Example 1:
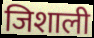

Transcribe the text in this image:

जिशाली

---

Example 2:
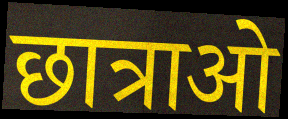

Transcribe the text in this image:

छात्राओ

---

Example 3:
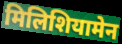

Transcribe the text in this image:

मिलिशियामेन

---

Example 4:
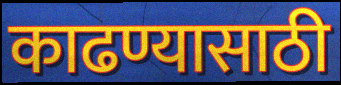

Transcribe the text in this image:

काढण्यासाठी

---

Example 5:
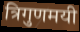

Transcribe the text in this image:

त्रिगुणमयी